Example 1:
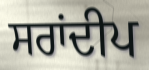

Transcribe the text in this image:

ਸਰਾਂਦੀਪ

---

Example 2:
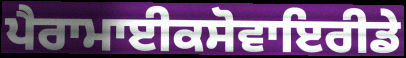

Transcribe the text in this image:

ਪੈਰਾਮਾਈਕਸੋਵਾਇਰੀਡੇ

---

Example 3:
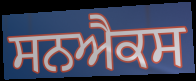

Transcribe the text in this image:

ਸਨਐਕਸ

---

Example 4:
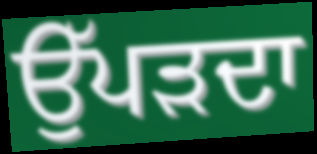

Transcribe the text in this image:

ਉੱਪੜਦਾ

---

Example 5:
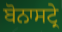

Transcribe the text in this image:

ਬੋਨਾਸਟ੍ਰੇ